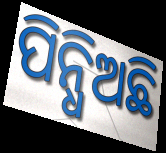
ପିନ୍ଧିଅଛି